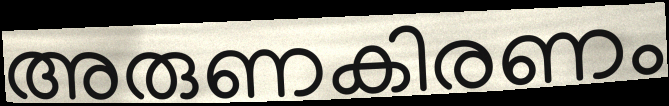
അരുണകിരണം